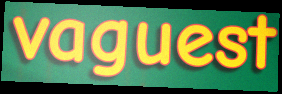
vaguest